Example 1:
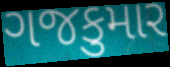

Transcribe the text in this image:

ગજકુમાર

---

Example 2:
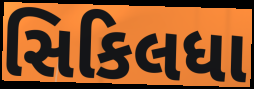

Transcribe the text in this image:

સિકિલધા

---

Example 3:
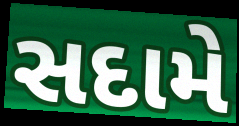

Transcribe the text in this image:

સદામે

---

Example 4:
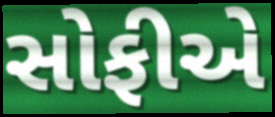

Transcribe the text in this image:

સોફીએ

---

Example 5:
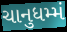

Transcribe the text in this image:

ચાનુધમ્મં